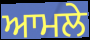
ਆਮਲੇ